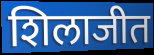
शिलाजीत